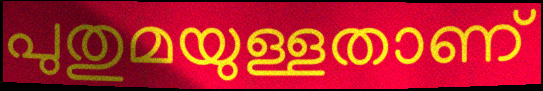
പുതുമയുള്ളതാണ്